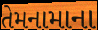
તેમનામાના